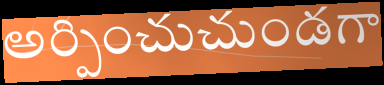
అర్పించుచుండగా